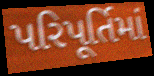
પરિપૂર્તિમાં